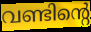
വണ്ടിന്റെ